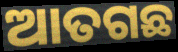
ଆତଗଛ